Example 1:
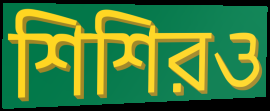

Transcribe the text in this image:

শিশিরও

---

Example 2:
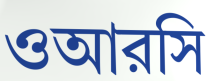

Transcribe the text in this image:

ওআরসি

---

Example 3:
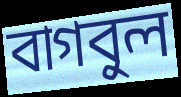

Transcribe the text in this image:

বাগবুল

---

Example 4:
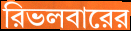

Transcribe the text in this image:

রিভলবারের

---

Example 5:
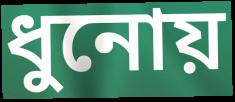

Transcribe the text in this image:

ধুনোয়